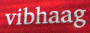
vibhaag